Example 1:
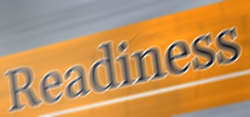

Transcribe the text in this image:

Readiness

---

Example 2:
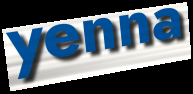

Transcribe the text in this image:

yenna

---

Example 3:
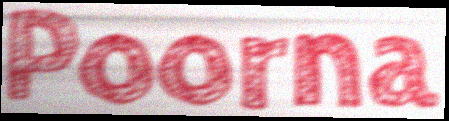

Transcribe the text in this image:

Poorna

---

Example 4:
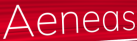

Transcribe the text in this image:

Aeneas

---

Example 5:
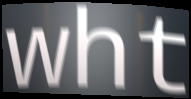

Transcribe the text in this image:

wht